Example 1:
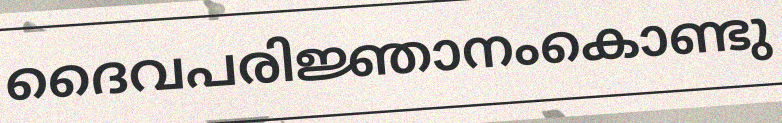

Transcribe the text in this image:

ദൈവപരിജ്ഞാനംകൊണ്ടു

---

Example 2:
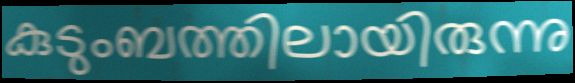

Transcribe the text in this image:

കുടുംബത്തിലായിരുന്നു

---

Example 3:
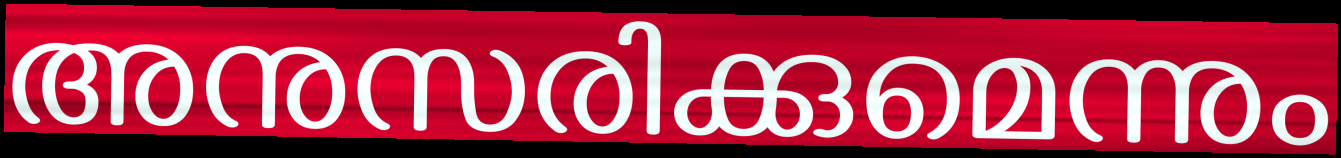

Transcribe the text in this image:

അനുസരിക്കുമെന്നും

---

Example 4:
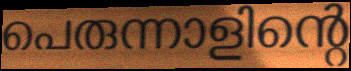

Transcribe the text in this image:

പെരുന്നാളിന്റെ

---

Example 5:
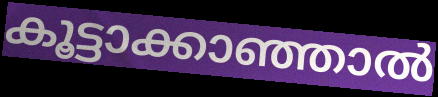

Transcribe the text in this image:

കൂട്ടാക്കാഞ്ഞാൽ